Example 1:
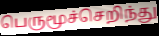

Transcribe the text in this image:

பெருமூச்செறிந்து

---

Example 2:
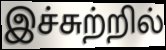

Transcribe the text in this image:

இச்சுற்றில்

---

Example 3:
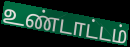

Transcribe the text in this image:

உண்டாட்டம்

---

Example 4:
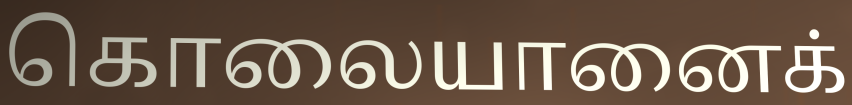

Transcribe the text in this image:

கொலையானைக்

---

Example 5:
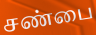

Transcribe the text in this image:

சண்பை